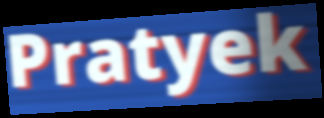
Pratyek